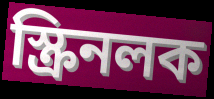
স্ক্রিনলক